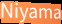
Niyama